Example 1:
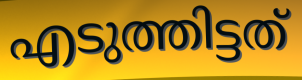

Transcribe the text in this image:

എടുത്തിട്ടത്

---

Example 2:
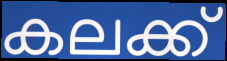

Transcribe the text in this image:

കലക്ക്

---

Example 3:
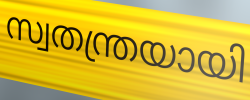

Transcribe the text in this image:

സ്വതന്ത്രയായി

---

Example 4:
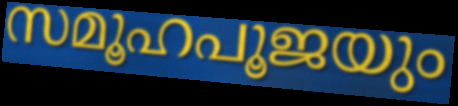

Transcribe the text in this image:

സമൂഹപൂജയും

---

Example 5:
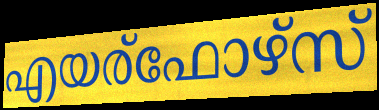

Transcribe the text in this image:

എയര്ഫോഴ്സ്